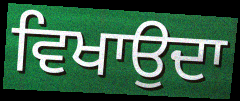
ਵਿਖਾਉਦਾ